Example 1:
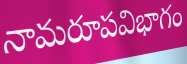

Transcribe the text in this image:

నామరూపవిభాగం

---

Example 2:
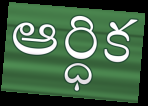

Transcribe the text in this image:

ఆర్ధిక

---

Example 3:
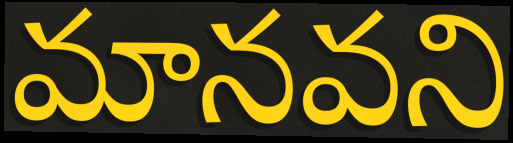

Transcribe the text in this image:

మానవని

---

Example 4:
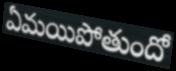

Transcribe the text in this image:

ఏమయిపోతుందో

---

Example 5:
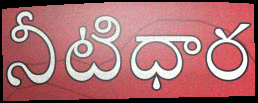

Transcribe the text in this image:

నీటిధార